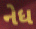
નેધ